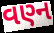
વણ્ન